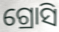
ଗ୍ରୋସି